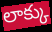
లాక్కు